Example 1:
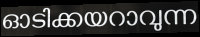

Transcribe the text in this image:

ഓടിക്കയറാവുന്ന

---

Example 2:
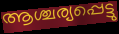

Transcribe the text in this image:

ആശ്ചര്യപ്പെട്ടു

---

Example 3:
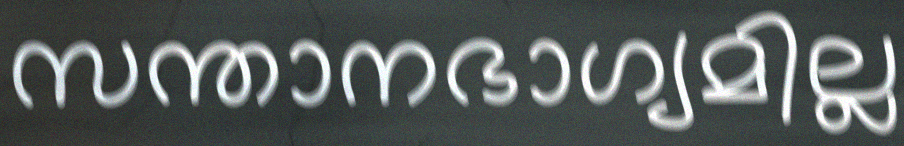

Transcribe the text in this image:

സന്താനഭാഗ്യമില്ല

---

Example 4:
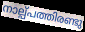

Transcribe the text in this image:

നാല്പ്പത്തിരണ്ടു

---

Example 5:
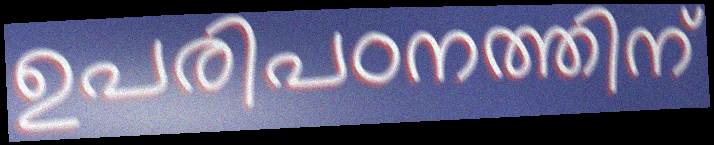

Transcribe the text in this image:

ഉപരിപഠനത്തിന്